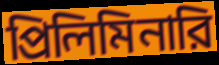
প্রিলিমিনারি